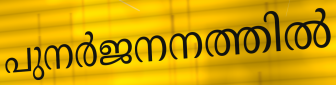
പുനർജനനത്തിൽ